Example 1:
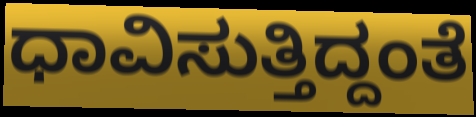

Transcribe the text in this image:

ಧಾವಿಸುತ್ತಿದ್ದಂತೆ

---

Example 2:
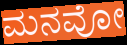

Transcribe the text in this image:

ಮನವೋ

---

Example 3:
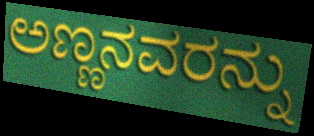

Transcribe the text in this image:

ಅಣ್ಣನವರನ್ನು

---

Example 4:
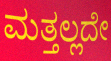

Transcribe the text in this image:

ಮತ್ತಲ್ಲದೇ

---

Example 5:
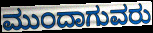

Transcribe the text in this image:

ಮುಂದಾಗುವರು